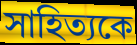
সাহিত্যকে